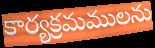
కార్యక్రమములను